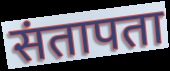
संतापता